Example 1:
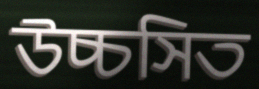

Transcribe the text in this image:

উচ্চসিত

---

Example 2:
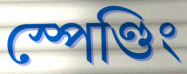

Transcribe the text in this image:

স্পেণ্ডিং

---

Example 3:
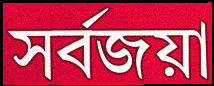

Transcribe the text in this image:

সৰ্বজয়া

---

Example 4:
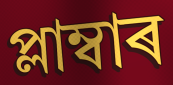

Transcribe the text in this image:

প্লাম্বাৰ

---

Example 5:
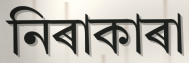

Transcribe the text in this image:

নিৰাকাৰা